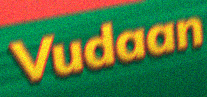
Vudaan